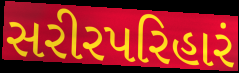
સરીરપરિહારં